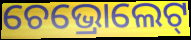
ଚେଭ୍ରୋଲେଟ୍